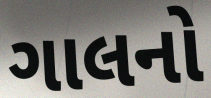
ગાલનો